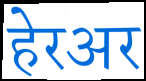
हेरअर